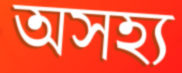
অসহ্য